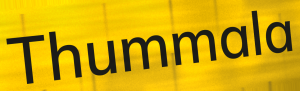
Thummala